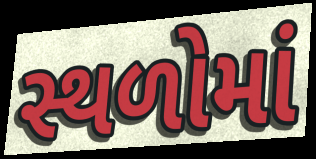
સ્થળોમાં